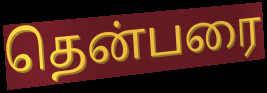
தென்பரை